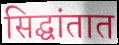
सिद्घांतात